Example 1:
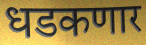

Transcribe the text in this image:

धडकणार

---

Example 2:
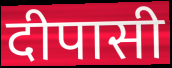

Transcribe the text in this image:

दीपासी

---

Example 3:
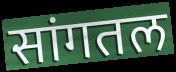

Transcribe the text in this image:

सांगतल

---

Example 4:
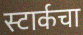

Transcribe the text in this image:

स्टार्कचा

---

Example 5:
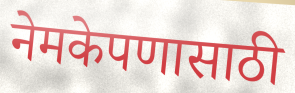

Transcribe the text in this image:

नेमकेपणासाठी